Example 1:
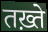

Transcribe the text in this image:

तख़्ते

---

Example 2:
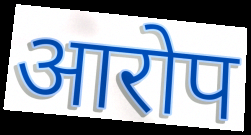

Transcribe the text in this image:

आरोप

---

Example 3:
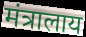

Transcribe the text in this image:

मंत्रालाय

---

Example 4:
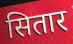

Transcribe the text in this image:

सितार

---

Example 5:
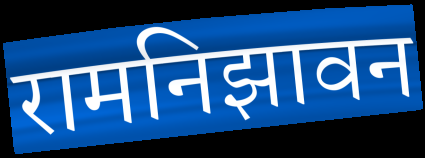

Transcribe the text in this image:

रामनिझावन